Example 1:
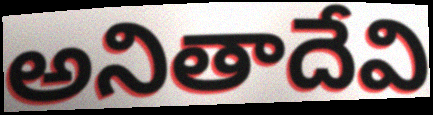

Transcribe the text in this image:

అనితాదేవి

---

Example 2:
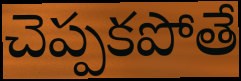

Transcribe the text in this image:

చెప్పకపోతే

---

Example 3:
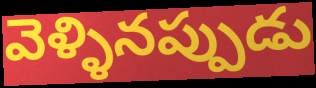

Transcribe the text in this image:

వెళ్ళినప్పుడు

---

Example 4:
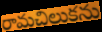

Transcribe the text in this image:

రామచిలుకను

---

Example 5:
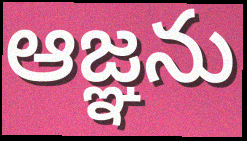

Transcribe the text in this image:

ఆజ్ఞను